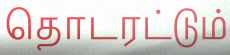
தொடரட்டும்